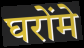
घरोंमे